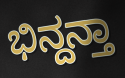
ಭಿನ್ದನ್ತಾ